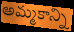
అమ్మకాన్ని